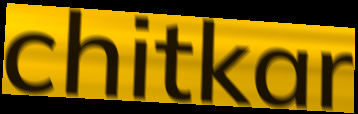
chitkar